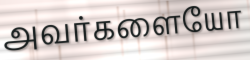
அவர்களையோ